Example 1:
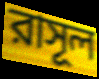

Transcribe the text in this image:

রাসূল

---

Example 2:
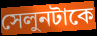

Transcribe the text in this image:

সেলুনটাকে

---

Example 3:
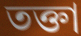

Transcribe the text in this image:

তক্তা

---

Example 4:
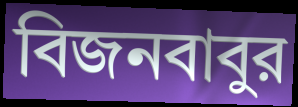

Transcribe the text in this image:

বিজনবাবুর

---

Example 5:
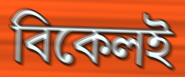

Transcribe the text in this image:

বিকেলই